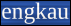
engkau